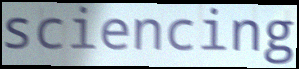
sciencing